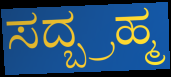
ಸದ್ಬ್ರಹ್ಮ